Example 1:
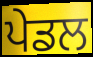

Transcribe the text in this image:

ਪੇਡਲ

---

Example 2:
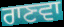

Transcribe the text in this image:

ਰਾਣਵਾ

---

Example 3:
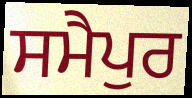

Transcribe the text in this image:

ਸਮੈਪੁਰ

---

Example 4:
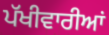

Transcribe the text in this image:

ਪੱਖੀਵਾਰੀਆਂ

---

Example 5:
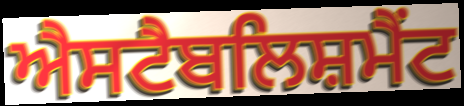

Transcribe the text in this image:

ਐਸਟੈਬਲਿਸ਼ਮੈਂਟ